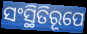
ସଂସ୍ଥିତିରୂପେ